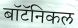
बॉटॅनिकल